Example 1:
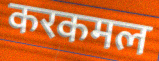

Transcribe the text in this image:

करकमल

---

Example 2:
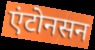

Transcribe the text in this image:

एंटोनसन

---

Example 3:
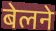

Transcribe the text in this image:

बेलने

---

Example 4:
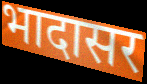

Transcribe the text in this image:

भादासर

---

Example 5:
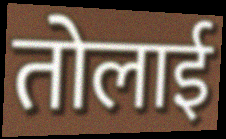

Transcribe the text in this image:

तोलाई